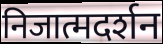
निजात्मदर्शन